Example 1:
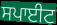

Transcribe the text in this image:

ਸਪਾਈਟ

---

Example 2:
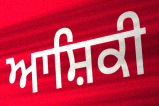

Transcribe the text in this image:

ਆਸ਼ਿਕੀ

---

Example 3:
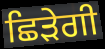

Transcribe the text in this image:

ਛਿੜੇਗੀ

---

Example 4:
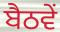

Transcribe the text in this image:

ਬੈਠਵੇਂ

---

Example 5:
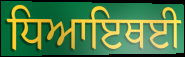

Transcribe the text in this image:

ਧਿਆਇਥਈ